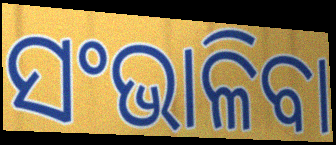
ସଂଭାଳିବା